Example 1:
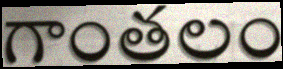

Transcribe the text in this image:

గాంతలం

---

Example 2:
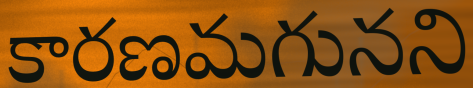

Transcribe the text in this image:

కారణమగునని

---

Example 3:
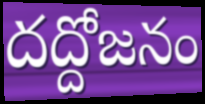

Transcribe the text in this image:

దద్దోజనం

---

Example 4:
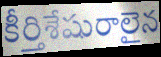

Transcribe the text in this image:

కీర్తిశేషురాలైన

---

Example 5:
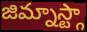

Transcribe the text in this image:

జిమ్నాస్ట్గా